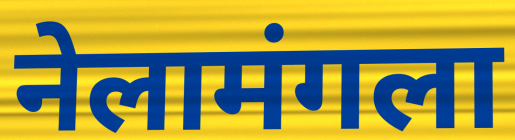
नेलामंगला